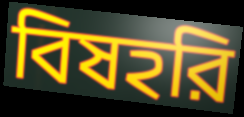
বিষহরি